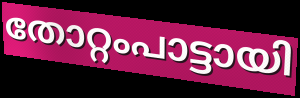
തോറ്റംപാട്ടായി